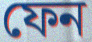
ফেন